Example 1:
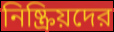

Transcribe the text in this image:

নিষ্ক্রিয়দের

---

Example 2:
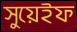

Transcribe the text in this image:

সুয়েইফ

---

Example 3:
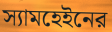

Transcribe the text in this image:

স্যামহেইনের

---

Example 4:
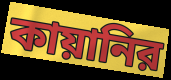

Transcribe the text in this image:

কায়ানির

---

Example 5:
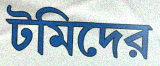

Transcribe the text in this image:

টমিদের